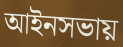
আইনসভায়